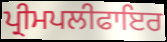
ਪ੍ਰੀਮਪਲੀਫਾਇਰ